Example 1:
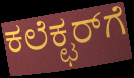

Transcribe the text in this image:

ಕಲೆಕ್ಟರ್‌ಗೆ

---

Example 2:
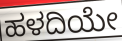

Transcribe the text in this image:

ಹಳದಿಯೇ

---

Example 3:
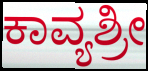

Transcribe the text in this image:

ಕಾವ್ಯಶ್ರೀ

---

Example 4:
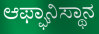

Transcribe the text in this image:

ಆಫ್ಘಾನಿಸ್ಥಾನ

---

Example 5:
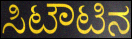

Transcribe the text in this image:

ಸಿಟೌಟಿನ